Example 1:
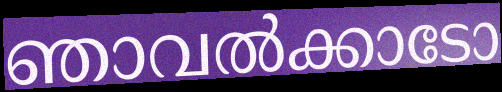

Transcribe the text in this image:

ഞാവൽക്കാടോ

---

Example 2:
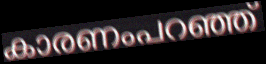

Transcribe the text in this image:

കാരണംപറഞ്ഞ്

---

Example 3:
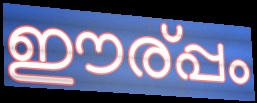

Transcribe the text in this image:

ഈര്പ്പം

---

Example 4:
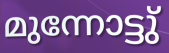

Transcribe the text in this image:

മുന്നോട്ടു്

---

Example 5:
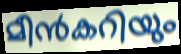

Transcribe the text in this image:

മീൻകറിയും